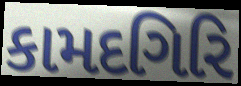
કામદગિરિ